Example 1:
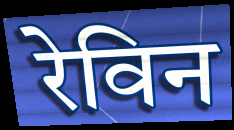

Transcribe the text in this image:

रेविन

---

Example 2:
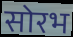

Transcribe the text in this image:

सोरभ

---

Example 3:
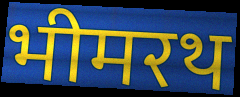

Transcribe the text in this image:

भीमरथ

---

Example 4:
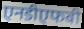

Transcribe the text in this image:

एनडीएफबी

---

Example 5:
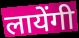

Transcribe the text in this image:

लायेंगी